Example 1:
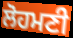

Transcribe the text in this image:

ਲੋਹਮਣੀ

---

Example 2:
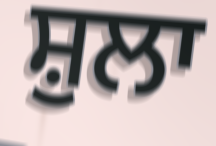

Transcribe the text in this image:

ਸ਼ੁਲਾ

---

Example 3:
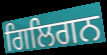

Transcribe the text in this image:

ਗਿਲਿਗਨ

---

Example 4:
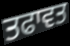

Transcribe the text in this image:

ਤਫਾਵਤ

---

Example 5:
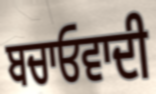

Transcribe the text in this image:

ਬਚਾਓਵਾਦੀ